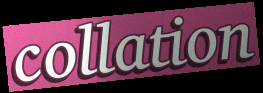
collation